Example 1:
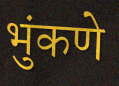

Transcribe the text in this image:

भुंकणे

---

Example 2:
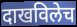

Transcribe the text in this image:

दाखविलेच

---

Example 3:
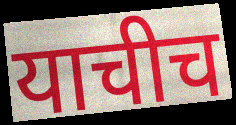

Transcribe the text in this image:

याचीच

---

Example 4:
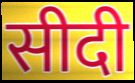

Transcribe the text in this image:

सीदी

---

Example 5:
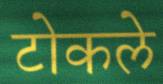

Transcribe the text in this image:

टोकले